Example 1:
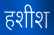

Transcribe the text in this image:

हशीश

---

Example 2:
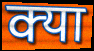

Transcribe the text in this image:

क्‍या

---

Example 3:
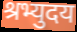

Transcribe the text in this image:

श्रभ्युदय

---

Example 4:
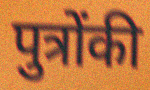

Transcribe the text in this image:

पुत्रोंकी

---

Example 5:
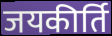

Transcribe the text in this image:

जयकीर्ति